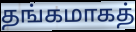
தங்கமாகத்